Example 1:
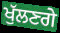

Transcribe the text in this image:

ਖੁੱਲਣਗੇ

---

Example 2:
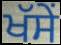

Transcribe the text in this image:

ਖੱਸੇਂ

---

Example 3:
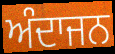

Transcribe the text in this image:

ਅੰਦਾਜਨ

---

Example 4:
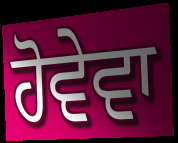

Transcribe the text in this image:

ਹੋਵੇਵਾ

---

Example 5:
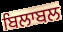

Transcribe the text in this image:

ਬਿਲਾਬਲ